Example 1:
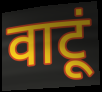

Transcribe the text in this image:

वाटूं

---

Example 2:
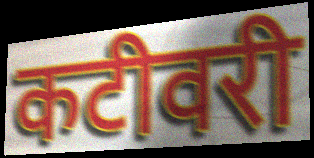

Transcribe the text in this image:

कटीवरी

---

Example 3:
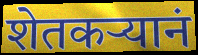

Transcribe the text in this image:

शेतकऱ्यानं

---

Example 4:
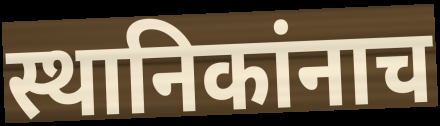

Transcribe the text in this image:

स्थानिकांनाच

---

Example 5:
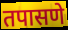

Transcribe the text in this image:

तपासणे